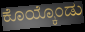
ಕೊಯ್ಕೊಂಡು